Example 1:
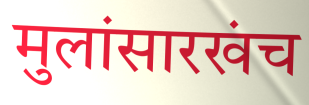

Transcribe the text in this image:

मुलांसारखंच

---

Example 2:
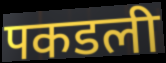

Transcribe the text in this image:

पकडली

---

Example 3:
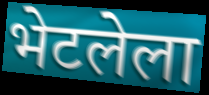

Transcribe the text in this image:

भेटलेला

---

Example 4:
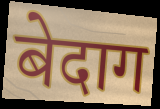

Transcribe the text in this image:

बेदाग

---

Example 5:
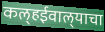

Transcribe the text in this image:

कल्हईवाल्याचा